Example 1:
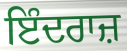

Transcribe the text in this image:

ਇੰਦਰਾਜ਼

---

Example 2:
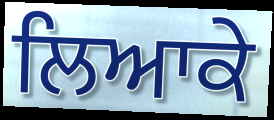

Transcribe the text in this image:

ਲਿਆਕੇ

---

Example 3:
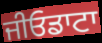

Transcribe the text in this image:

ਜੀਓਡਾਟਾ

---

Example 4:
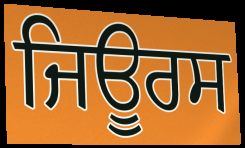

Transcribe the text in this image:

ਜਿਊਰਸ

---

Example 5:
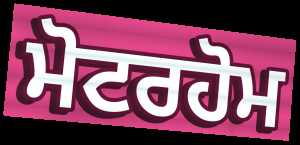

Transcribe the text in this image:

ਮੋਟਰਹੋਮ